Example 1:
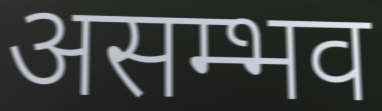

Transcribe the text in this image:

असम्भव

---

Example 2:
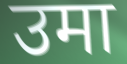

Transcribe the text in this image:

उमा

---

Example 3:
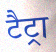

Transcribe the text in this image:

टैट्रा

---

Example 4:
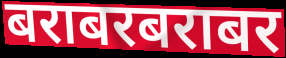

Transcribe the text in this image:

बराबरबराबर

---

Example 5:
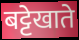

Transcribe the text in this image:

बट्टेखाते